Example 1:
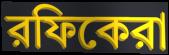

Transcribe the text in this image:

রফিকেরা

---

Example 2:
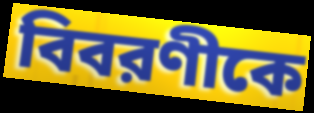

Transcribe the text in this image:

বিবরণীকে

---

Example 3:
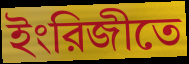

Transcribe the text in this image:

ইংরিজীতে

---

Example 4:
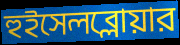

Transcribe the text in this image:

হুইসেলব্লোয়ার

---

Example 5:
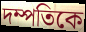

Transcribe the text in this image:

দম্পতিকে